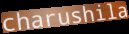
charushila